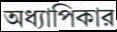
অধ্যাপিকার